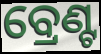
ବ୍ରେଣ୍ଟ